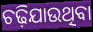
ଚଢ଼ିଯାଉଥିବା